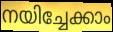
നയിച്ചേക്കാം